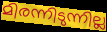
മിരന്നിടുന്നില്ല